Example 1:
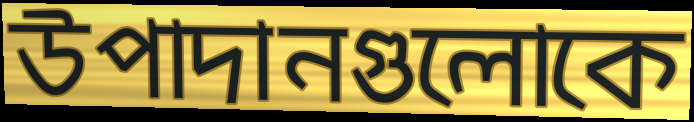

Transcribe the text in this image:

উপাদানগুলোকে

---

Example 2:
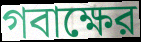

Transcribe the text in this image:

গবাক্ষের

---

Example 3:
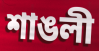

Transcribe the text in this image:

শাঙলী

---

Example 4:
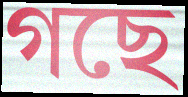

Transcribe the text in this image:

গছে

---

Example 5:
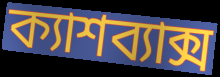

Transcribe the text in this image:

ক্যাশব্যাক্স